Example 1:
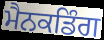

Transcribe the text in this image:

ਮੈਨਕਡਿੰਗ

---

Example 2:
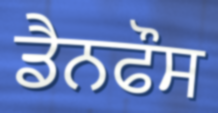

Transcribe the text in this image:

ਡੈਨਫੌਸ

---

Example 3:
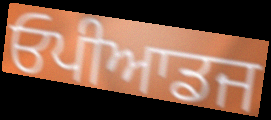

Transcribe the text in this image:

ਓਪੀਆਡਜ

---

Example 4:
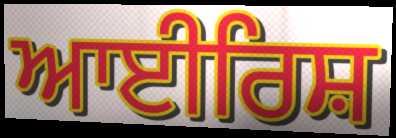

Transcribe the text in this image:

ਆਈਰਿਸ਼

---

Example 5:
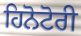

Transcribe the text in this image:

ਹਿਨੋਟੋਰੀ